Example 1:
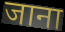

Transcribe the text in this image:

जाना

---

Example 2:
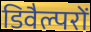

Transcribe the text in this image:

डिवैल्परों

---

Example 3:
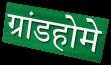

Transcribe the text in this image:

ग्रांडहोमे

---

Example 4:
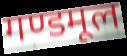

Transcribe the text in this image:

गण्डमूल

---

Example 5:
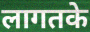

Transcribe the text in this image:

लागतके